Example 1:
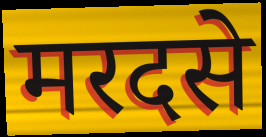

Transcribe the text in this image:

मरदसे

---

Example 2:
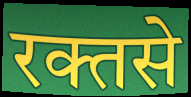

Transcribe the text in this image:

रक्तसे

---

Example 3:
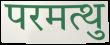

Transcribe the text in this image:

परमत्थु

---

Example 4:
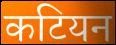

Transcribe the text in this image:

कटियन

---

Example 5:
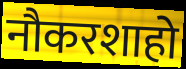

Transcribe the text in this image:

नौकरशाहो